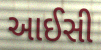
આઈસી